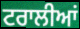
ਟਰਾਲੀਆਂ